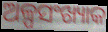
ଅଳ୍ପସଂଖ୍ୟାକ